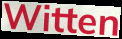
Witten